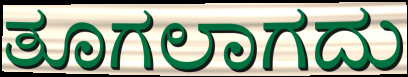
ತೂಗಲಾಗದು